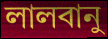
লালবানু